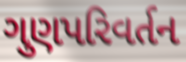
ગુણપરિવર્તન